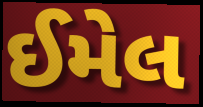
ઈમેલ